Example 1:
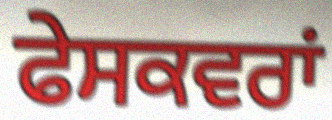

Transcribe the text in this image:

ਫੇਸਕਵਰਾਂ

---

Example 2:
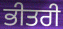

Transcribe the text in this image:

ਭੀਤਰੀ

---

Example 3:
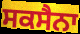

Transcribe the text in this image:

ਸਕਸੈਨਾ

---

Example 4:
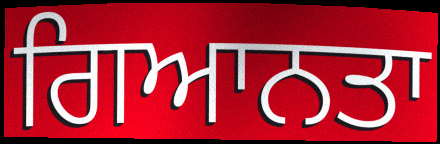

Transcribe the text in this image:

ਗਿਆਨਤਾ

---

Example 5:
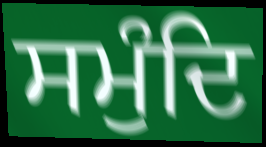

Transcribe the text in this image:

ਸਮੁੰਦਿ